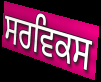
ਸਰਵਿਕਸ